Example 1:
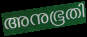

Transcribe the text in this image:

അനുഭൂതി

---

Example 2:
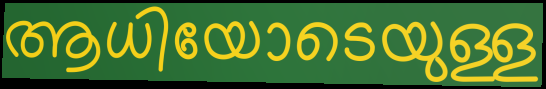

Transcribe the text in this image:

ആധിയോടെയുള്ള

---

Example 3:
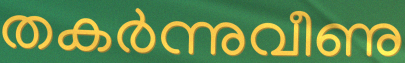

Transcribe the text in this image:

തകർന്നുവീണു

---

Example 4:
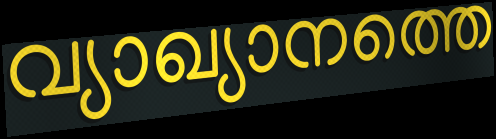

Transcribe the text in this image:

വ്യാഖ്യാനത്തെ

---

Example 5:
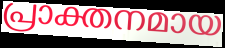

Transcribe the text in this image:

പ്രാക്തനമായ